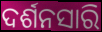
ଦର୍ଶନସାରି